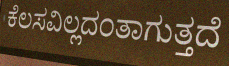
ಕೆಲಸವಿಲ್ಲದಂತಾಗುತ್ತದೆ